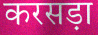
करसड़ा